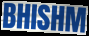
BHISHM